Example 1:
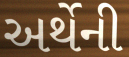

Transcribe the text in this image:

અર્થેની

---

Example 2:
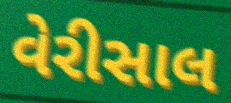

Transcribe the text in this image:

વેરીસાલ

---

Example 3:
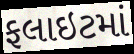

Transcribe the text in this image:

ફલાઇટમાં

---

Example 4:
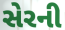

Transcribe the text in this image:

સેરની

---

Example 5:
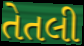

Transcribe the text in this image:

તેતલી